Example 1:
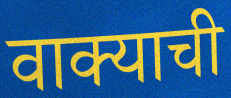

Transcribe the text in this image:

वाक्याची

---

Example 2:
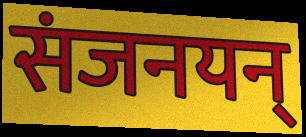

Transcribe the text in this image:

संजनयन्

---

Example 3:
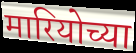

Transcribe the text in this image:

मारियोच्या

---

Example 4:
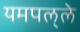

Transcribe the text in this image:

यमपल्ले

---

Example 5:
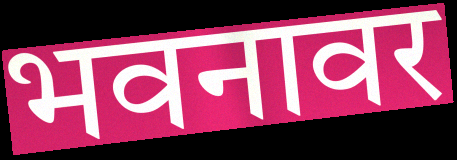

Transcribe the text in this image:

भवनावर